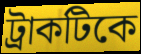
ট্রাকটিকে